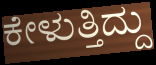
ಕೇಳುತ್ತಿದ್ದು